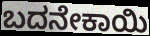
ಬದನೇಕಾಯಿ